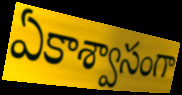
ఏకాశ్వాసంగా